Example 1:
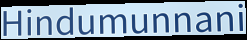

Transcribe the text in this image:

Hindumunnani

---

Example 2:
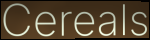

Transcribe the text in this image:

Cereals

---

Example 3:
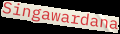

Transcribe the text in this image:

Singawardana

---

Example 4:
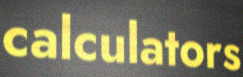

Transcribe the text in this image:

calculators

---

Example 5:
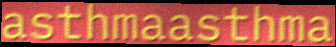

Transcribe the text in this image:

asthmaasthma